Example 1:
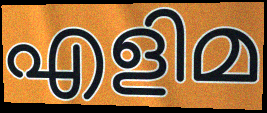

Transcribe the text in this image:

എളിമ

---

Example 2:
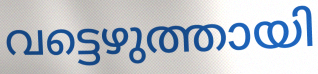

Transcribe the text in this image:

വട്ടെഴുത്തായി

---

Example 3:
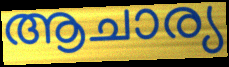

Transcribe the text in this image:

ആചാര്യ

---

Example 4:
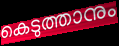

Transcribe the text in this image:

കെടുത്താനും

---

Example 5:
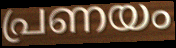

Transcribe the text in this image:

പ്രണയം